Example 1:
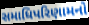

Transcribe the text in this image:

સમાધિપરિણામનો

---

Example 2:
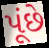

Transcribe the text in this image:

પૂંછે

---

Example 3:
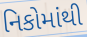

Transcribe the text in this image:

નિકોમાંથી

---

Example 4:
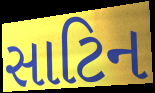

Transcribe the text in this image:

સાટિન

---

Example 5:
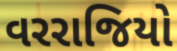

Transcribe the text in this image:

વરરાજિયો